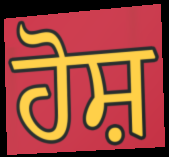
ਹੋਸ਼